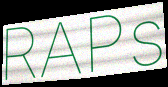
RAPs